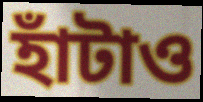
হাঁটাও